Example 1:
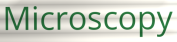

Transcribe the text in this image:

Microscopy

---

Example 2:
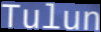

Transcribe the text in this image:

Tulun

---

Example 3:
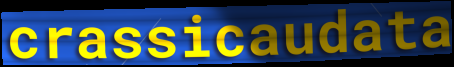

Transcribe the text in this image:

crassicaudata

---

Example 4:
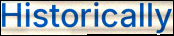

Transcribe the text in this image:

Historically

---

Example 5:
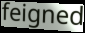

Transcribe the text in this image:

feigned